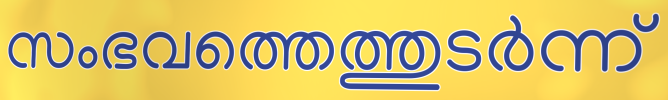
സംഭവത്തെത്തുടർന്ന്